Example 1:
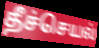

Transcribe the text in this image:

தீச்செயல்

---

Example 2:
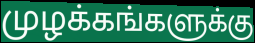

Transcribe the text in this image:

முழக்கங்களுக்கு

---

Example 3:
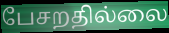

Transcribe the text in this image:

பேசறதில்லை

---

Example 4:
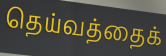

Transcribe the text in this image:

தெய்வத்தைக்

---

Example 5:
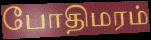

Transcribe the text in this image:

போதிமரம்